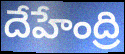
దేహేంద్రి